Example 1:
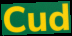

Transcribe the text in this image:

Cud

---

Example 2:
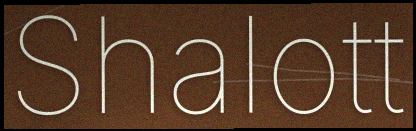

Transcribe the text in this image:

Shalott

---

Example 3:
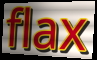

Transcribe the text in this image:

flax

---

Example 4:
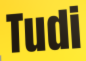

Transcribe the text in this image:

Tudi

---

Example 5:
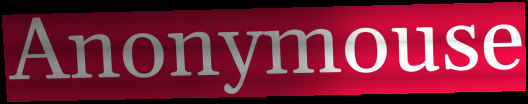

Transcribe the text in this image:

Anonymouse